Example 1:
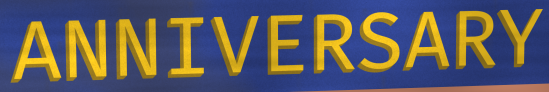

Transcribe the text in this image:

ANNIVERSARY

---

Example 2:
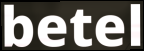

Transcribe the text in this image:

betel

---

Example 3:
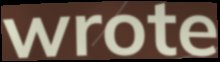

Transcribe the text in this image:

wrote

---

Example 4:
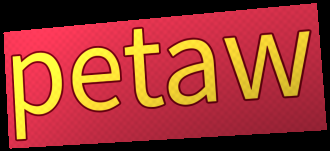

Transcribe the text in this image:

petaw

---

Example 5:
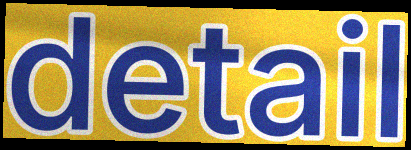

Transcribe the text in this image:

detail